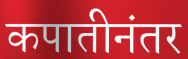
कपातीनंतर